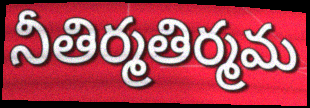
నీతిర్మతిర్మమ